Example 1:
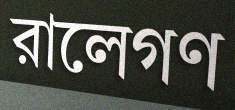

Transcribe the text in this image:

রালেগণ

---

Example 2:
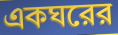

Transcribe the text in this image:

একঘরের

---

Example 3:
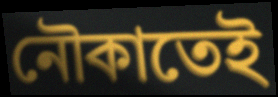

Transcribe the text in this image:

নৌকাতেই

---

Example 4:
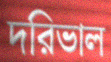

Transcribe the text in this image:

দরিভাল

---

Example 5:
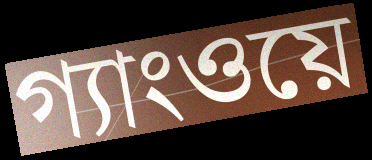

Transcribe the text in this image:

গ্যাংওয়ে